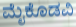
ಮೈಕೊಡವಿ